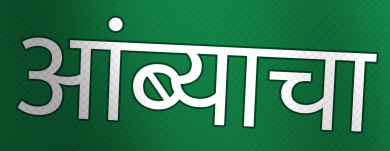
आंब्याचा